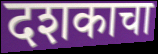
दशकाचा